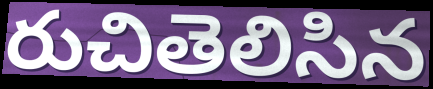
రుచితెలిసిన